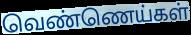
வெண்ணெய்கள்